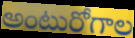
అంటురోగాల